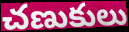
చణుకులు